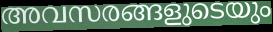
അവസരങ്ങളുടെയും